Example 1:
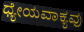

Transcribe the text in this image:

ಧ್ಯೇಯವಾಕ್ಯವು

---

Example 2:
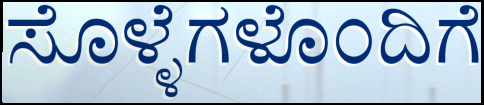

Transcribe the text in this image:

ಸೊಳ್ಳೆಗಳೊಂದಿಗೆ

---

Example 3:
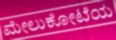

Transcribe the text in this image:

ಮೇಲುಕೋಟೆಯ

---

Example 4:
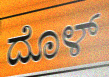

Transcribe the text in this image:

ದೊಳ್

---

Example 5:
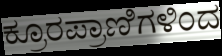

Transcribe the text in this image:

ಕ್ರೂರಪ್ರಾಣಿಗಳಿಂದ